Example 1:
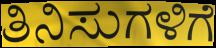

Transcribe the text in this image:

ತಿನಿಸುಗಳಿಗೆ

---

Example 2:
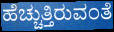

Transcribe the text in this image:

ಹೆಚ್ಚುತ್ತಿರುವಂತೆ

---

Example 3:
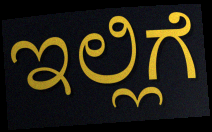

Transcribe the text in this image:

ಇಲ್ಲಿಗೆ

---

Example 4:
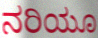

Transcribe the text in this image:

ನರಿಯೂ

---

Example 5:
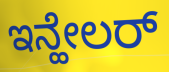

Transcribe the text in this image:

ಇನ್ಹೇಲರ್